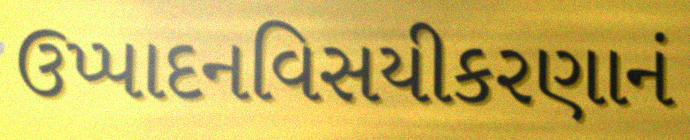
ઉપ્પાદનવિસયીકરણાનં